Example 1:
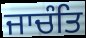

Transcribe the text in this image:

ਜਾਚੰਤਿ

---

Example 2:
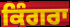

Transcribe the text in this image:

ਕਿੰਗਰਾ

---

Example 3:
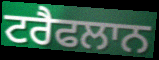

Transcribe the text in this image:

ਟਰੈਫਲਾਨ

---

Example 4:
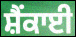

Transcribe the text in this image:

ਸ਼ੈਂਕਾਈ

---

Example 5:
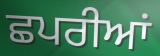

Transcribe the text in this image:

ਛਪਰੀਆਂ